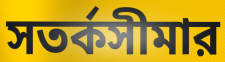
সতর্কসীমার